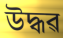
উদ্ধৱ